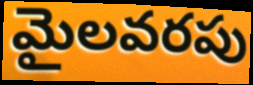
మైలవరపు